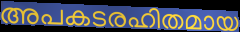
അപകടരഹിതമായ